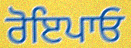
ਰੋਇਪਾਓ